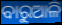
ବାରୁଆଳି